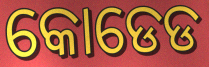
କୋଡେଡ